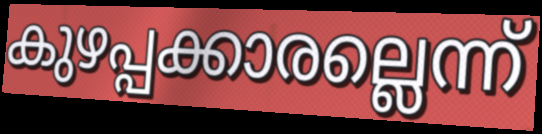
കുഴപ്പക്കാരല്ലെന്ന്